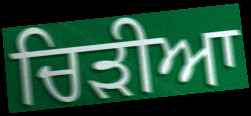
ਚਿੜੀਆ